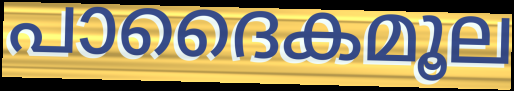
പാദൈകമൂല